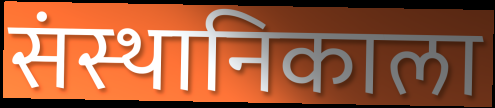
संस्थानिकाला